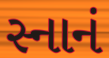
સ્નાનં